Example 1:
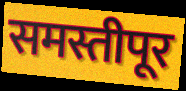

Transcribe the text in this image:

समस्तीपूर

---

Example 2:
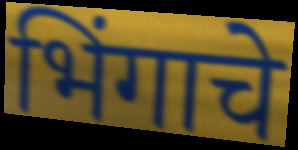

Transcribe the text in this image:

भिंगाचे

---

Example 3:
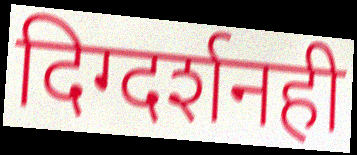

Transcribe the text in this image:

दिग्दर्शनही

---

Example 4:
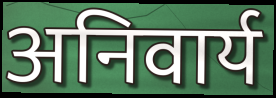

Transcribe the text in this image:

अनिवार्य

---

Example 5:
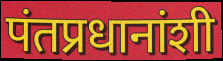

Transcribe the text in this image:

पंतप्रधानांशी